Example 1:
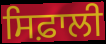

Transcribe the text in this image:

ਸਿਫ਼ਾਲੀ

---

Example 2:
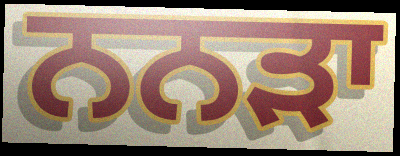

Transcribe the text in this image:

ਨਨੜਾ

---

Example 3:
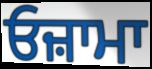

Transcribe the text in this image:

ਓਜ਼ਾਮਾ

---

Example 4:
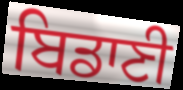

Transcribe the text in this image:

ਬਿਡਾਣੀ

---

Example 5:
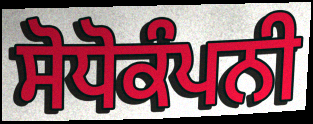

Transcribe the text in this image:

ਸੋਧੋਕੰਪਨੀ